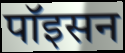
पॉइसन